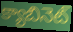
క్యాబినెట్